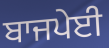
ਬਾਜਪੇਈ